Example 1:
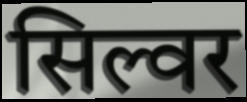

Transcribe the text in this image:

सिल्‍वर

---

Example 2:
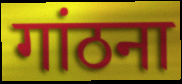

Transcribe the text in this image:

गांठना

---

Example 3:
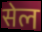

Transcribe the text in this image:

सेल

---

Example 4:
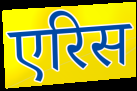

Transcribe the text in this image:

एरिस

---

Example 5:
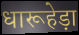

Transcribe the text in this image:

धारूहेड़ा